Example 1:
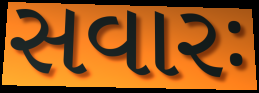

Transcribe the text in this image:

સવારઃ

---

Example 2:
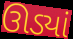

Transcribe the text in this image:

ઊડ્યાં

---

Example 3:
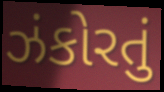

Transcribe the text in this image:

ઝંકોરતું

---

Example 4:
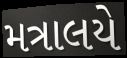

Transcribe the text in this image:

મત્રાલયે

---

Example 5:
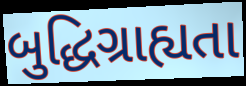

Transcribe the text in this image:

બુદ્ધિગ્રાહ્યતા